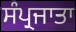
ਸੰਪ੍ਰਜਾਤਾ